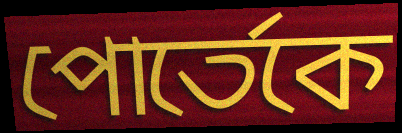
পোর্তেকে